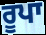
ਰੂਪਾ